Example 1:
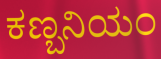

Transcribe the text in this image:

ಕಣ್ಬನಿಯಂ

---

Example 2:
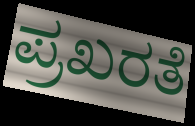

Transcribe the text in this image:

ಪ್ರಖರತೆ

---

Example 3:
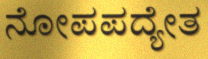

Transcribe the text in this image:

ನೋಪಪದ್ಯೇತ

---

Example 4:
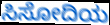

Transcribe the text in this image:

ಸಿಸೋದಿಯ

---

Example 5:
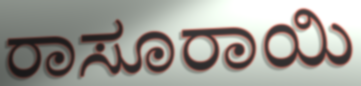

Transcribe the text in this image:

ರಾಸೂರಾಯಿ